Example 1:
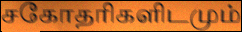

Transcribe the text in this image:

சகோதரிகளிடமும்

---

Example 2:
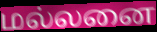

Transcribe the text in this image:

மல்லனை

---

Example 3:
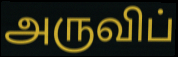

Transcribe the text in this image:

அருவிப்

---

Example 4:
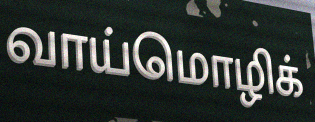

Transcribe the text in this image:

வாய்மொழிக்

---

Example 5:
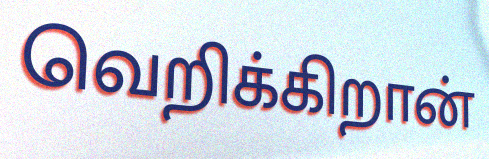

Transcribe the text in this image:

வெறிக்கிறான்